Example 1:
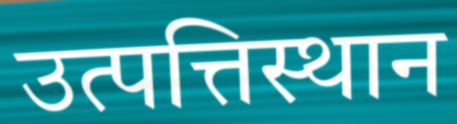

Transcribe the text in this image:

उत्पत्तिस्थान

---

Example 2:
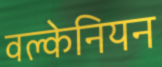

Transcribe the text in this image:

वल्केनियन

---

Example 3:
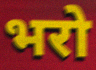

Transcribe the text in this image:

भरो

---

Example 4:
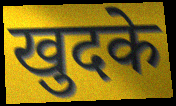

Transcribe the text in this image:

खुदके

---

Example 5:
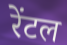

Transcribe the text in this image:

रेंटल